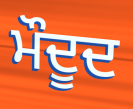
ਮੌਦੂਦ